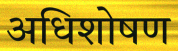
अधिशोषण